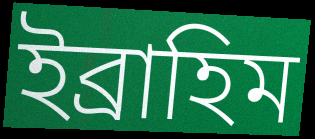
ইব্ৰাহিম